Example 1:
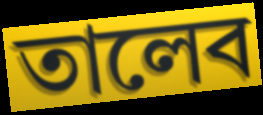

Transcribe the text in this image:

তালেব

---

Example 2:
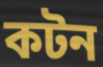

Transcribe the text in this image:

কটন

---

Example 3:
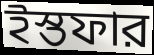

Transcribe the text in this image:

ইস্তফার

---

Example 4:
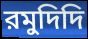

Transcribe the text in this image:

রমুদিদি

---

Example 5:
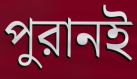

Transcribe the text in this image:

পুরানই